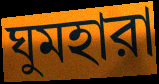
ঘুমহারা